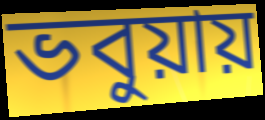
ভবুয়ায়